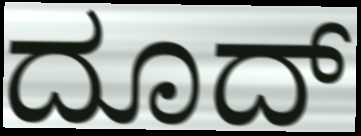
ದೂದ್